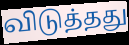
விடுத்தது